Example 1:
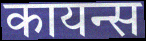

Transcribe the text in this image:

कायन्स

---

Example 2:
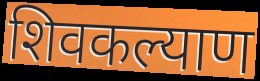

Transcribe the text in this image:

शिवकल्याण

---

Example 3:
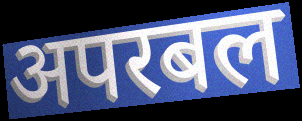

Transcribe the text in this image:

अपरबल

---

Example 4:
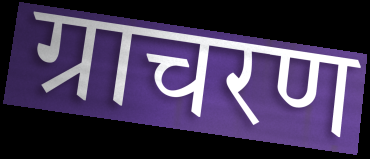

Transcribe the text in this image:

ग्राचरण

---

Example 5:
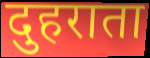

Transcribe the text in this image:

दुहराता